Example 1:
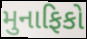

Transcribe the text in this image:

મુનાફિકો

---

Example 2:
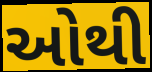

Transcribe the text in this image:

ઓથી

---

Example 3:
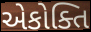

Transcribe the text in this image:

એકોક્તિ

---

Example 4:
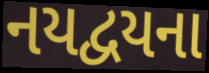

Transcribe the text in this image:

નયદ્વયના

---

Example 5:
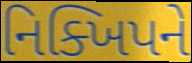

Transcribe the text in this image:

નિક્ખિપને